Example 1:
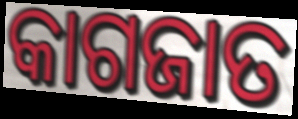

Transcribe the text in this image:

କାଗଜାତ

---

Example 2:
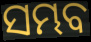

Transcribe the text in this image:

ସମ୍ଭବ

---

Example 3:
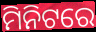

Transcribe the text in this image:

ମିନିଟରେ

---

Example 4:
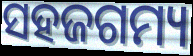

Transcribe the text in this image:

ସହଜଗମ୍ୟ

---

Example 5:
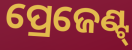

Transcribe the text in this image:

ପ୍ରେଜେଣ୍ଟ୍